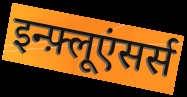
इन्फ़्लूएंसर्स